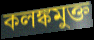
কলঙ্কমুক্ত